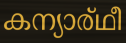
കന്യാര്ഥീ